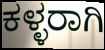
ಕಳ್ಳರಾಗಿ